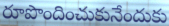
రూపొందించుకునేందుకు